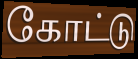
கோட்டு